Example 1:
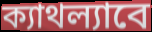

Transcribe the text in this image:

ক্যাথল্যাবে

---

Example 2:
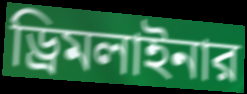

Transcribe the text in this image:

ড্রিমলাইনার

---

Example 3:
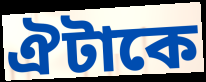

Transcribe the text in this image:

ঐটাকে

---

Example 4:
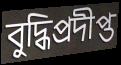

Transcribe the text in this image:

বুদ্ধিপ্রদীপ্ত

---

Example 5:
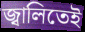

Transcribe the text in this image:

জ্বালিতেই